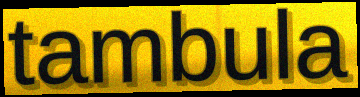
tambula